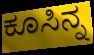
ಕೂಸಿನ್ನ